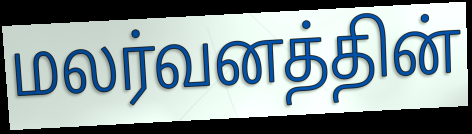
மலர்வனத்தின்